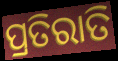
ପ୍ରତିରାତି